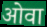
ओवा